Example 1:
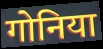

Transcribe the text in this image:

गोनिया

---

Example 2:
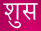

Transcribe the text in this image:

शुस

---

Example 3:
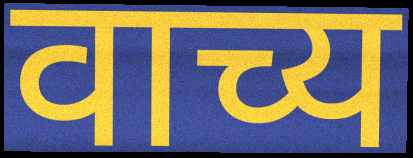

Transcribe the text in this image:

वाच्य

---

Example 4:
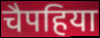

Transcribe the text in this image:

चैपहिया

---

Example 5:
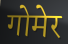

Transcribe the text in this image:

गोमेर